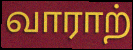
வாராற்